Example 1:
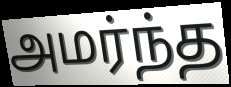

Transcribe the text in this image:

அமர்ந்த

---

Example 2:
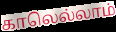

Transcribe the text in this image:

காலெல்லாம்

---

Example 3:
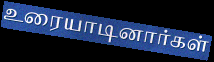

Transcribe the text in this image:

உரையாடினார்கள்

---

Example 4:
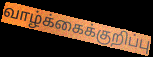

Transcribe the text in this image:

வாழ்க்கைக்குறிப்பு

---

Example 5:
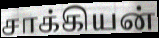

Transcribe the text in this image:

சாக்கியன்